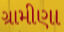
ગ્રામીણા